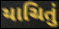
યાચિતું